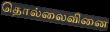
தொல்லைவினை